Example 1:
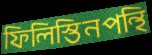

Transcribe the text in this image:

ফিলিস্তিনপন্থি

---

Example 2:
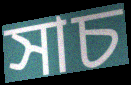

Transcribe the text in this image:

সাচ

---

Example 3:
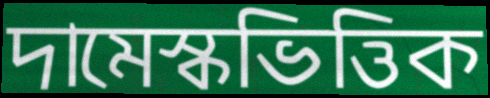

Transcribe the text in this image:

দামেস্কভিত্তিক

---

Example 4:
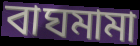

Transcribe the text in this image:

বাঘমামা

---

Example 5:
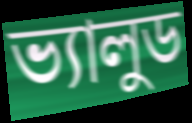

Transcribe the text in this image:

ভ্যালুড